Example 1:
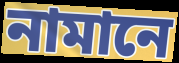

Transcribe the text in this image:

নামানে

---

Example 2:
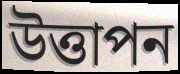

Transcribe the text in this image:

উত্তাপন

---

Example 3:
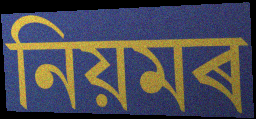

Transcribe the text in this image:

নিয়মৰ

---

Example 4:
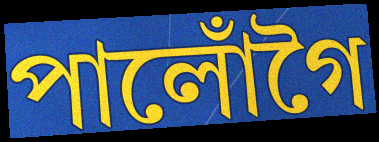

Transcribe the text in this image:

পালোঁগৈ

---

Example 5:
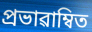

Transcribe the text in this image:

প্ৰভাৱাম্বিত